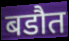
बडौत